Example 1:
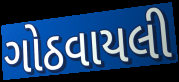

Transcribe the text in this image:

ગોઠવાયલી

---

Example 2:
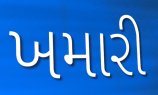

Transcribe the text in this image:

ખમારી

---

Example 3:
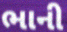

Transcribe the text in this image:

ભાની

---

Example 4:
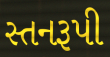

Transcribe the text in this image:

સ્તનરૂપી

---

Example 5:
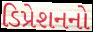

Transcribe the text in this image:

ડિપ્રેશનનો